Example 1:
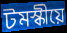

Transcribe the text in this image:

টমস্কীয়ে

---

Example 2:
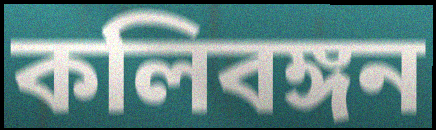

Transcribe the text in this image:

কলিবঙ্গন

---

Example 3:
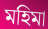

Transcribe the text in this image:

মহিমা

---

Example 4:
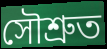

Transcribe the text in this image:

সৌশ্ৰুত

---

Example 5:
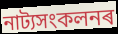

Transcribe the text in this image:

নাট্যসংকলনৰ